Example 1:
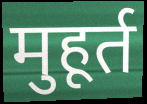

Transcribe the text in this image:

मुहूर्त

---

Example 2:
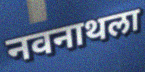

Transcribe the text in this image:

नवनाथला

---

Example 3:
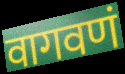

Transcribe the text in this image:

वागवणं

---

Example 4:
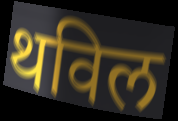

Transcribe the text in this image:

थविल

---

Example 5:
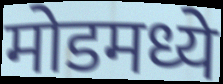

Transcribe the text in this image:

मोडमध्ये